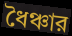
ধৈঞ্চার